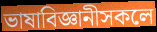
ভাষাবিজ্ঞানীসকলে